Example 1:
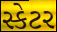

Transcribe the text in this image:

સ્કેટર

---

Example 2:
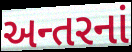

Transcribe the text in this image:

અન્તરનાં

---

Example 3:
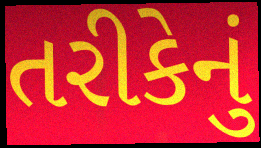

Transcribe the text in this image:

તરીકેનું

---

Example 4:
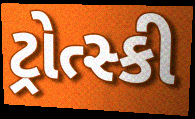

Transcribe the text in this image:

ટ્રોત્સ્કી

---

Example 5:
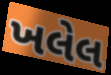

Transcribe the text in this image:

ખલેલ